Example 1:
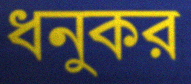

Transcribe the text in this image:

ধনুকর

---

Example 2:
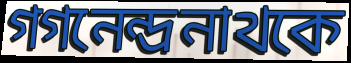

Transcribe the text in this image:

গগনেন্দ্রনাথকে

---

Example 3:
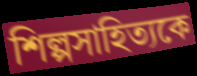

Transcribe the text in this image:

শিল্পসাহিত্যকে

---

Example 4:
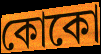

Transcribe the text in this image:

কোকো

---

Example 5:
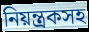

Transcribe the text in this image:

নিয়ন্ত্রকসহ